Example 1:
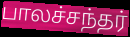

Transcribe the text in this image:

பாலச்சந்தர்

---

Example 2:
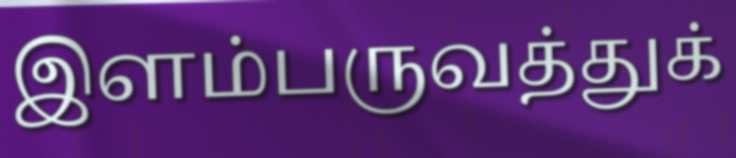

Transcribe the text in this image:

இளம்பருவத்துக்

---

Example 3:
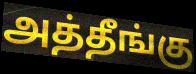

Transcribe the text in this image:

அத்தீங்கு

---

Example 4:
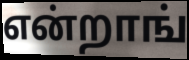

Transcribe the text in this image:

என்றாங்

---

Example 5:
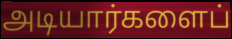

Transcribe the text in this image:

அடியார்களைப்